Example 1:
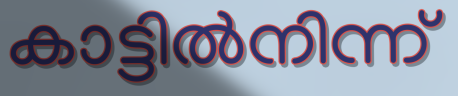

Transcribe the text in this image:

കാട്ടിൽനിന്ന്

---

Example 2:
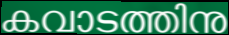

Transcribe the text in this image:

കവാടത്തിനു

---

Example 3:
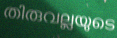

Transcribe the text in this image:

തിരുവല്ലയുടെ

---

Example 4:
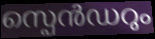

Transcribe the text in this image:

സ്പെൻഡറും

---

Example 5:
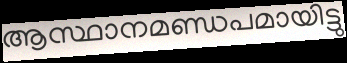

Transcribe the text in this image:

ആസ്ഥാനമണ്ഡപമായിട്ടു